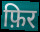
फ़िर